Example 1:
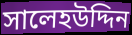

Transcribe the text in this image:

সালেহউদ্দিন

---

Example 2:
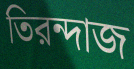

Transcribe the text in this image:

তিরন্দাজ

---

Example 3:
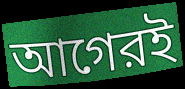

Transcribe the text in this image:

আগেরই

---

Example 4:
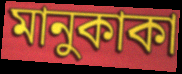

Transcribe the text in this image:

মানুকাকা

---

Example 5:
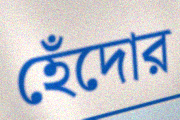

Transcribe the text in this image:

হেঁদোর